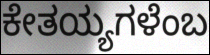
ಕೇತಯ್ಯಗಳೆಂಬ